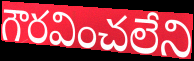
గౌరవించలేని